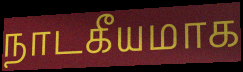
நாடகீயமாக